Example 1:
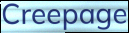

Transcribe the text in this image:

Creepage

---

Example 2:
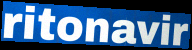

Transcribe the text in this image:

ritonavir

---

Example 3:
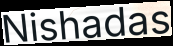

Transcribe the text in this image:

Nishadas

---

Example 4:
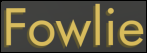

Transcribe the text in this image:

Fowlie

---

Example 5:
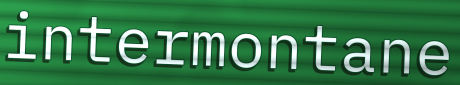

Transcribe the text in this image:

intermontane